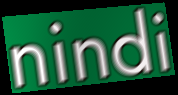
nindi